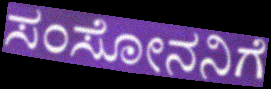
ಸಂಸೋನನಿಗೆ